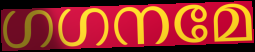
ഗഗനമേ